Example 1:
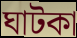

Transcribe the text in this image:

ঘাটকা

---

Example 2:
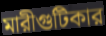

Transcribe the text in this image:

মারীগুটিকার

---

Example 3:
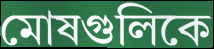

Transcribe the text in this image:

মোষগুলিকে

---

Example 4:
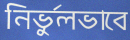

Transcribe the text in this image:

নির্ভুলভাবে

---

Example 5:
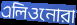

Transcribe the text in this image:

এলিওনোরা